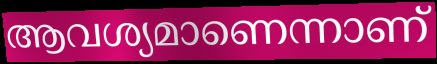
ആവശ്യമാണെന്നാണ്